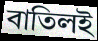
বাতিলই